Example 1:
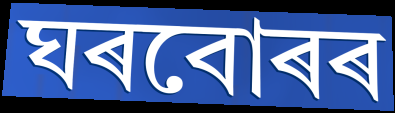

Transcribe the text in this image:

ঘৰবোৰৰ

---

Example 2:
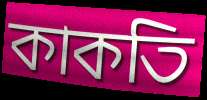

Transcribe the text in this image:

কাকতি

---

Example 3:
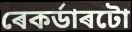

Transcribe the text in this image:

ৰেকৰ্ডাৰটো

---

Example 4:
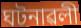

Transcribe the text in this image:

ঘটনাৱলী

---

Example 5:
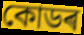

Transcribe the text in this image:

কোডৰ